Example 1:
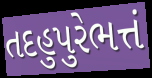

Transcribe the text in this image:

તદહુપુરેભત્તં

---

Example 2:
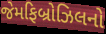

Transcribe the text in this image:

જેમફિબ્રોઝિલનો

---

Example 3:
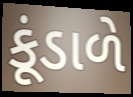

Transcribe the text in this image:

કૂંડાળે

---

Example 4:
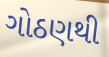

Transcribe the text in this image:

ગોઠણથી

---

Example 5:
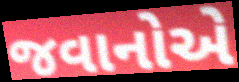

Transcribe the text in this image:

જવાનોએ